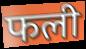
फली